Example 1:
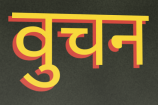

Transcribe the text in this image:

वुचन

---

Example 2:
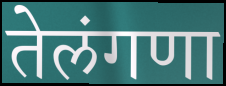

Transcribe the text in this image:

तेलंगणा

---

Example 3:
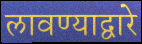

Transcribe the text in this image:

लावण्याद्वारे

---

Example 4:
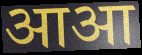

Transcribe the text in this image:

आआ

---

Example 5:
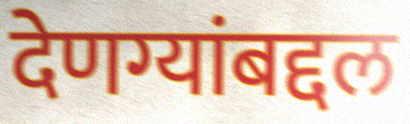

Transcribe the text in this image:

देणग्यांबद्दल